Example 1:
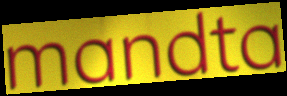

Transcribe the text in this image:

mandta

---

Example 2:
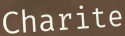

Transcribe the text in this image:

Charite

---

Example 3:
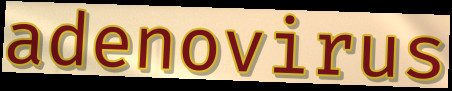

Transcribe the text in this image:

adenovirus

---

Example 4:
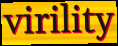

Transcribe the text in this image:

virility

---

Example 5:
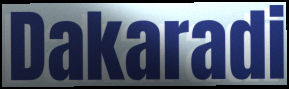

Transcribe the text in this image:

Dakaradi